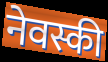
नेवस्की